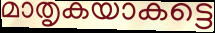
മാതൃകയാകട്ടെ